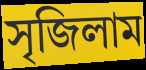
সৃজিলাম